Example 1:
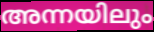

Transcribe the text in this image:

അന്നയിലും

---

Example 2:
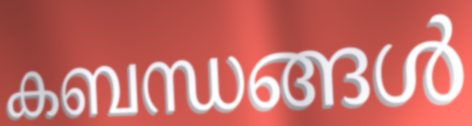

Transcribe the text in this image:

കബന്ധങ്ങൾ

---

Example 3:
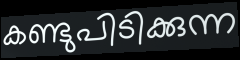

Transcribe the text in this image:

കണ്ടുപിടിക്കുന്ന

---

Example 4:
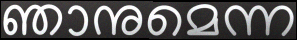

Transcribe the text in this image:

ഞാനുമെന്ന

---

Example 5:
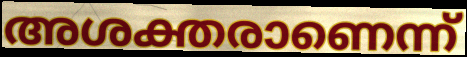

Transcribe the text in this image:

അശക്തരാണെന്ന്